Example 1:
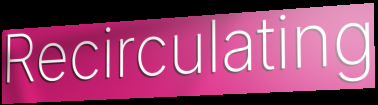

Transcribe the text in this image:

Recirculating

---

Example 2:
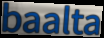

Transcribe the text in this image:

baalta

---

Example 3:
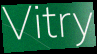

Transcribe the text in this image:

Vitry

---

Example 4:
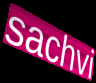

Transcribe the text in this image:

sachvi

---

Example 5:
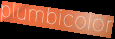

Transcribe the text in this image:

plumbicolor